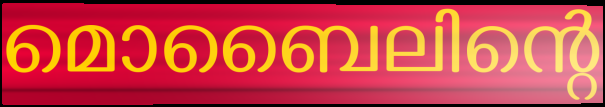
മൊബൈലിന്റെ